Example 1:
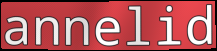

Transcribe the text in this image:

annelid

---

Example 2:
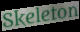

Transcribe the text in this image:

Skeleton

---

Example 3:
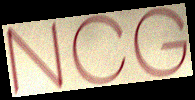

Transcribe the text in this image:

NCG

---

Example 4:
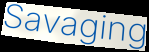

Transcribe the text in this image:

Savaging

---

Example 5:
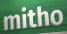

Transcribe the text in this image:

mitho